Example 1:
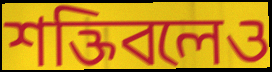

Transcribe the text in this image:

শক্তিবলেও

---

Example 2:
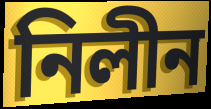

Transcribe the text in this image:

নিলীন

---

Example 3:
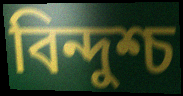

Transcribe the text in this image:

বিন্দুশ্চ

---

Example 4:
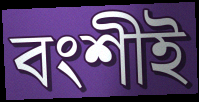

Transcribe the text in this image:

বংশীই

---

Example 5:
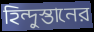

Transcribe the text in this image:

হিন্দুস্তানের